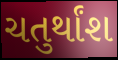
ચતુર્થાંશ